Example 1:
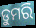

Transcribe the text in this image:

ଡୁମରି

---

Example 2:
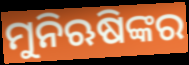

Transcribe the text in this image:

ମୁନିଋଷିଙ୍କର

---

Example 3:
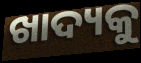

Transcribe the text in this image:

ଖାଦ୍ୟକୁ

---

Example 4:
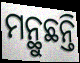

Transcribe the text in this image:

ମନ୍ଥୁଛନ୍ତି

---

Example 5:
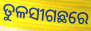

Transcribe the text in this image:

ତୁଳସୀଗଛରେ